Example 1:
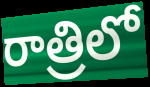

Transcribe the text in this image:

రాత్రిలో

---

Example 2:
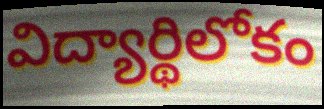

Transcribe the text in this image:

విద్యార్థిలోకం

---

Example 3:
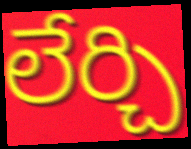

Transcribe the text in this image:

లేర్చి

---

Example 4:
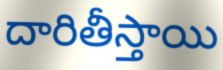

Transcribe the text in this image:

దారితీస్తాయి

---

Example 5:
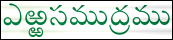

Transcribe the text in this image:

ఎఱ్ఱసముద్రము